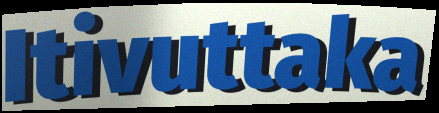
Itivuttaka